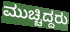
ಮುಚ್ಚಿದ್ದರು